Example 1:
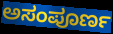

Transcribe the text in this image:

ಅಸಂಪೂರ್ಣ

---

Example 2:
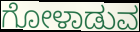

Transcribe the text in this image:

ಗೋಳಾಡುವ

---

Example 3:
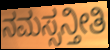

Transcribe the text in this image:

ನಮಸ್ಸನ್ತೀತಿ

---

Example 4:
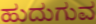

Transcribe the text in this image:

ಹುದುಗುವ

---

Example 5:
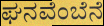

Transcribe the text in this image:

ಘನವೆಂಬೆನೆ